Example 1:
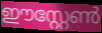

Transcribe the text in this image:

ഈസ്റ്റേൺ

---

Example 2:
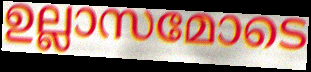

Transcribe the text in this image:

ഉല്ലാസമോടെ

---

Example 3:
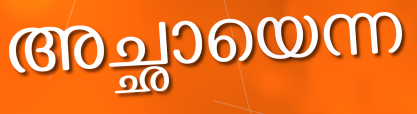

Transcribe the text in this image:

അച്ഛായെന്ന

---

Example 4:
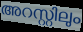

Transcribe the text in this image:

അറസ്റ്റിലും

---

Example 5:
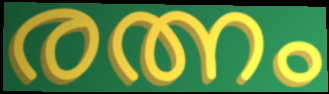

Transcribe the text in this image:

രത്നം